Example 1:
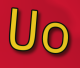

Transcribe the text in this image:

Uo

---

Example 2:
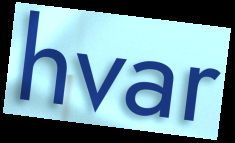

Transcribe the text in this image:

hvar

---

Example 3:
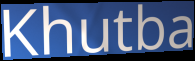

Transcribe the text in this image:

Khutba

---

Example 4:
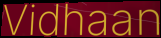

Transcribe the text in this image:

Vidhaan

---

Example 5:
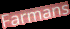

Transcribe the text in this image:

Farmans